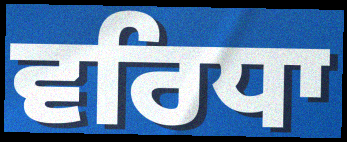
ਵਰਿਧਾ